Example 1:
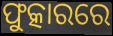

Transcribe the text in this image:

ଫୁତ୍କାରରେ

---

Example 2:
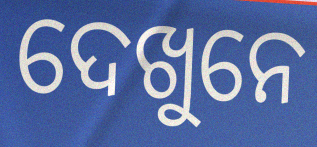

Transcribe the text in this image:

ଦେଖୁନେ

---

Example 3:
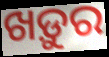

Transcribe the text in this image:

ଖଡ଼ୁର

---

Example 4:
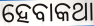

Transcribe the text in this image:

ହେବାକଥା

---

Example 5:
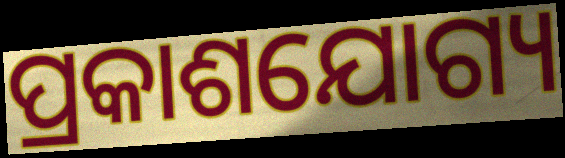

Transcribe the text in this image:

ପ୍ରକାଶଯୋଗ୍ୟ